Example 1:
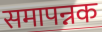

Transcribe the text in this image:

समापन्नक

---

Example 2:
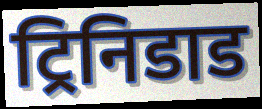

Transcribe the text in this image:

ट्रिनिडाड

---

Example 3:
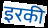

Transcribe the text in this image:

इरकी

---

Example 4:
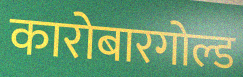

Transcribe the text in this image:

कारोबारगोल्ड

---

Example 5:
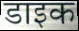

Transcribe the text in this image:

डाइक